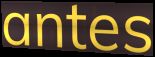
antes